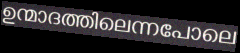
ഉന്മാദത്തിലെന്നപോലെ